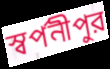
স্বর্পনীপুর